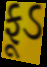
ફૂડ